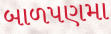
બાળપણમા